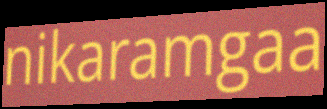
nikaramgaa